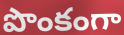
పొంకంగా